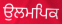
ਉਲਮਪਿਕ